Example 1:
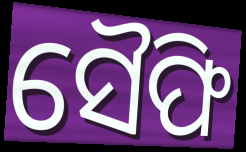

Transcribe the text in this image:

ସୈଫି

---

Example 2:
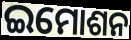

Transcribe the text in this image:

ଇମୋଶନ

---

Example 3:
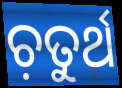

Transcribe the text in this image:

ଚ଼ତୁର୍ଥ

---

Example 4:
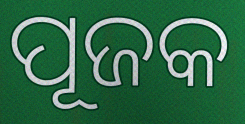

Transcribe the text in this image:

ପୂଜକ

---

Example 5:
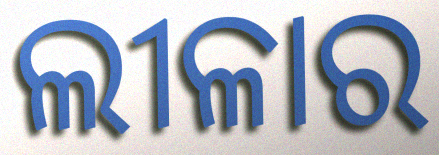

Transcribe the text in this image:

ଲୀଳାର